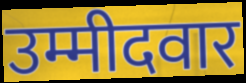
उम्‍मीदवार